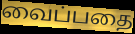
வைப்பதை